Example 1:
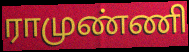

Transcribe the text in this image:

ராமுண்ணி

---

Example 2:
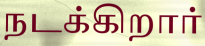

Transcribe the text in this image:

நடக்கிறார்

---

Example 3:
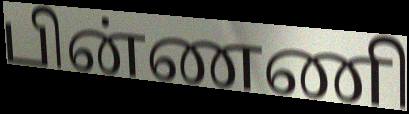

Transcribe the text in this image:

பின்ணணி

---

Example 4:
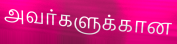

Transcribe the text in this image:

அவர்களுக்கான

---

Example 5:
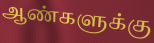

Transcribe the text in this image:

ஆண்களுக்கு